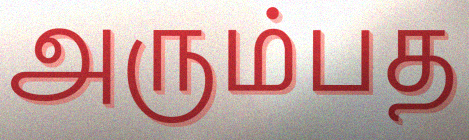
அரும்பத